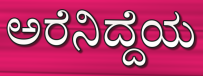
ಅರೆನಿದ್ದೆಯ